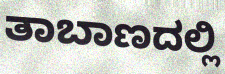
ತಾಬಾಣದಲ್ಲಿ